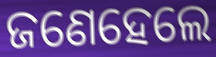
ଜଣେହେଲେ